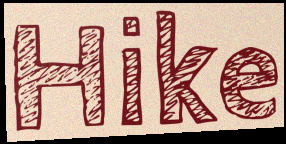
Hike